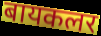
बायकलर